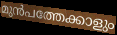
മുൻപത്തേക്കാളും